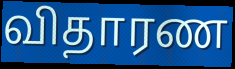
விதாரண